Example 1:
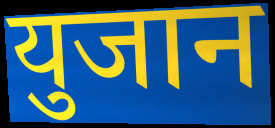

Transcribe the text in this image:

युजान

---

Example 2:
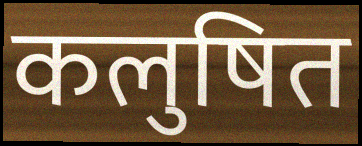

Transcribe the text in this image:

कलुषित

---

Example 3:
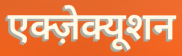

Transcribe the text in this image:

एक्ज़ेक्यूशन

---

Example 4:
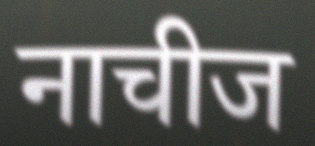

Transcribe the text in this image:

नाचीज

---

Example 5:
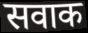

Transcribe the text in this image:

सवाक